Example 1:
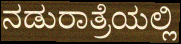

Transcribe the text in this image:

ನಡುರಾತ್ರೆಯಲ್ಲಿ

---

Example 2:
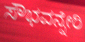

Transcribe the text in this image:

ಸೌಭವನ್ನೇರಿ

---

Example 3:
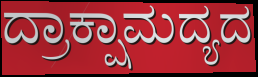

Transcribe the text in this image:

ದ್ರಾಕ್ಷಾಮದ್ಯದ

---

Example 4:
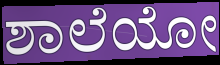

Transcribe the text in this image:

ಶಾಲೆಯೋ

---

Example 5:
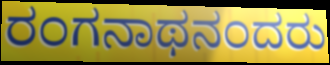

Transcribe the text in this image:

ರಂಗನಾಥನಂದರು